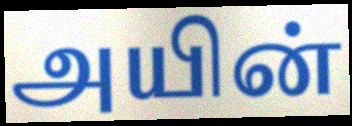
அயின்